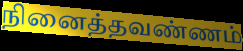
நினைத்தவண்ணம்